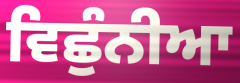
ਵਿਛੁੰਨੀਆ